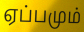
ஏப்பமும்